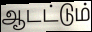
ஆடட்டும்